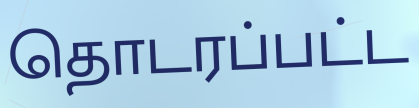
தொடரப்பட்ட